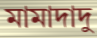
মামাদাদু